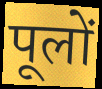
पूलों